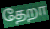
தேறா